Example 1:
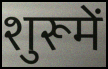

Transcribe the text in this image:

शुरूमें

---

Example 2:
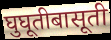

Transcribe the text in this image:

घुघूतीबासूती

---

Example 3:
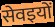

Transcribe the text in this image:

सेवइयों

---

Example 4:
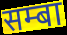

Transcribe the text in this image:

सम्बा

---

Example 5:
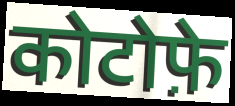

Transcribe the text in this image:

कोटोफ़े